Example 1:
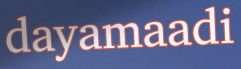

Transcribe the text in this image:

dayamaadi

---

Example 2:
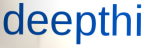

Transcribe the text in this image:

deepthi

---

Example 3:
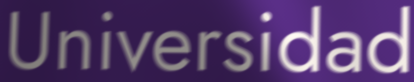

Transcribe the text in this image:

Universidad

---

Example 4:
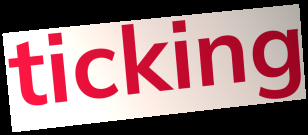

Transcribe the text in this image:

ticking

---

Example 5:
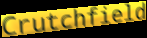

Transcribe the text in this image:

Crutchfield